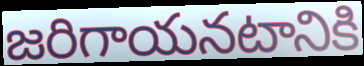
జరిగాయనటానికి